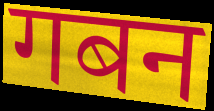
गबन